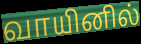
வாயினில்